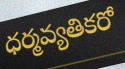
ధర్మవ్యతికరో